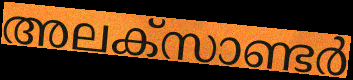
അലക്സാണ്ടർ